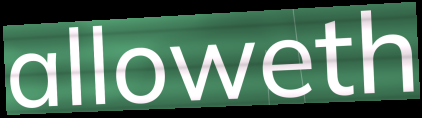
alloweth